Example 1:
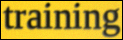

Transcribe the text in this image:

training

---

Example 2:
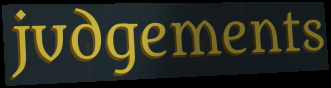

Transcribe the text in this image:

judgements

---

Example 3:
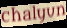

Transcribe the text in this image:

chalyun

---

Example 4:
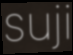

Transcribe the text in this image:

suji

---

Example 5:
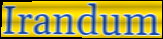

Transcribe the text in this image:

Irandum